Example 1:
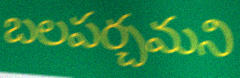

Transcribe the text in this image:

బలపర్చమని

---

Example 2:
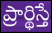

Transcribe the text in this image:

ప్రార్థిస్తే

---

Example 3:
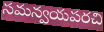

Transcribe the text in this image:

సమన్వయపరచి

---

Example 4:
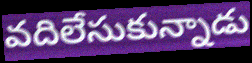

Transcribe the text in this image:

వదిలేసుకున్నాడు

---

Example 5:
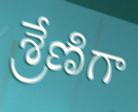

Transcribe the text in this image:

శ్రేణిగా